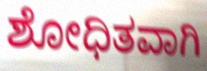
ಶೋಧಿತವಾಗಿ